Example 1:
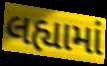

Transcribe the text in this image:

લહ્યામાં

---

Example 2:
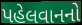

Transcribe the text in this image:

પહેલવાનનો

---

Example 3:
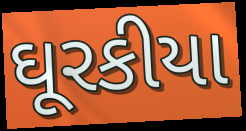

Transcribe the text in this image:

ઘૂરકીયા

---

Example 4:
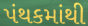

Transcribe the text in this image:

પંથકમાંથી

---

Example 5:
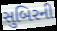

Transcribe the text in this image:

સુબિરની